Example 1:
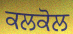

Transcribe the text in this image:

ਕਲਕੋਲ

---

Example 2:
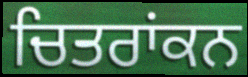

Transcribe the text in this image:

ਚਿਤਰਾਂਕਨ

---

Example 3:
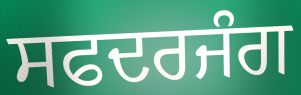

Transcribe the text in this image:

ਸਫਦਰਜੰਗ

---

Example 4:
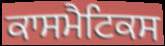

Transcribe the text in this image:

ਕਾਸਮੈਟਿਕਸ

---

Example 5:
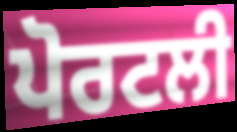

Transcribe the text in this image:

ਪੋਰਟਲੀ